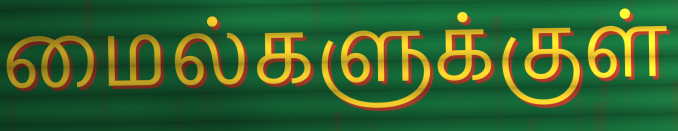
மைல்களுக்குள்